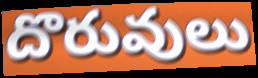
దొరువులు